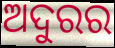
ଅଦୁରର